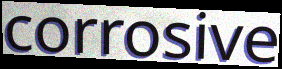
corrosive